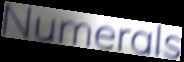
Numerals